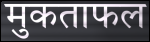
मुकताफल